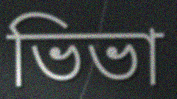
ভিভা